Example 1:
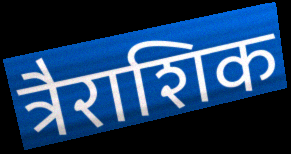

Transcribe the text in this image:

त्रैराशिक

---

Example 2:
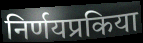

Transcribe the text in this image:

निर्णयप्रकिया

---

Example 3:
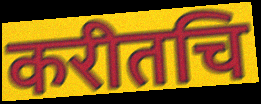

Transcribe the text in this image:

करीतचि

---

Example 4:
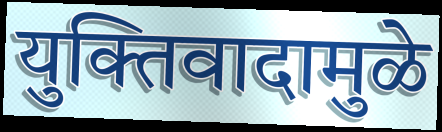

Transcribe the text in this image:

युक्तिवादामुळे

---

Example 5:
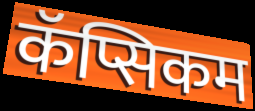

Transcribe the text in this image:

कॅप्सिकम